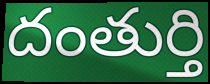
దంతుర్తి